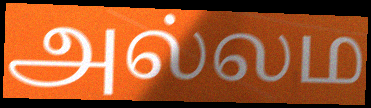
அல்லம